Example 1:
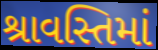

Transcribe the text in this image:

શ્રાવસ્તિમાં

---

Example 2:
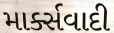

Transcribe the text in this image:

માર્ક્સવાદી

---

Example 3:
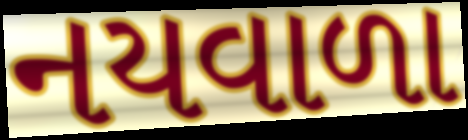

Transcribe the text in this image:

નયવાળા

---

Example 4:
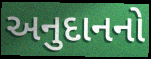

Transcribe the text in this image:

અનુદાનનો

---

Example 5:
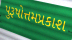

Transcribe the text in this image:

પુરૂષોત્તમપ્રકાશ